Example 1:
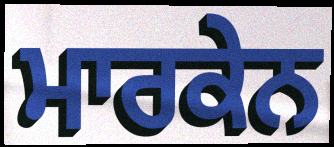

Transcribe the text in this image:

ਮਾਰਕੇਨ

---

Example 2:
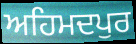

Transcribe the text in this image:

ਅਹਿਮਦਪੁਰ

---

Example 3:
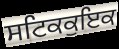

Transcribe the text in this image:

ਸਟਿਕਕੁਇਕ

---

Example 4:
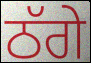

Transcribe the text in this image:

ਠੱਗੇ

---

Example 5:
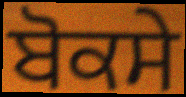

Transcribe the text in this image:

ਬੋਕਸੇ